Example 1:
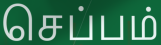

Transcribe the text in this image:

செப்பம்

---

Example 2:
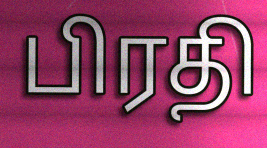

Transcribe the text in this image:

பிரதி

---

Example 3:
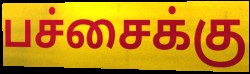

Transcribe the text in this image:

பச்சைக்கு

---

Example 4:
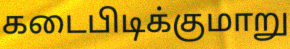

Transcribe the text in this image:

கடைபிடிக்குமாறு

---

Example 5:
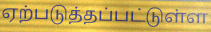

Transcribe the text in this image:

ஏற்படுத்தப்பட்டுள்ள